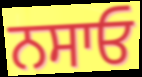
ਨਸਾਓ